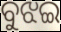
ବୁଝଇ